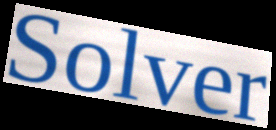
Solver